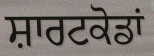
ਸ਼ਾਰਟਕੋਡਾਂ